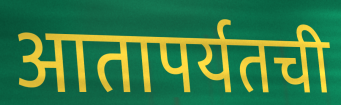
आतापर्यतची